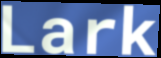
Lark